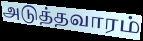
அடுத்தவாரம்